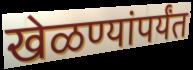
खेळण्यांपर्यंत